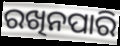
ରଖିନପାରି